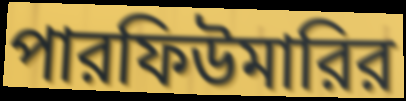
পারফিউমারির